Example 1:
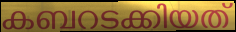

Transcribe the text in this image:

കബറടക്കിയത്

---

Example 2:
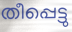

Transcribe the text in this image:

തീപ്പെട്ടു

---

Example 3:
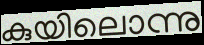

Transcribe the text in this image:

കുയിലൊന്നു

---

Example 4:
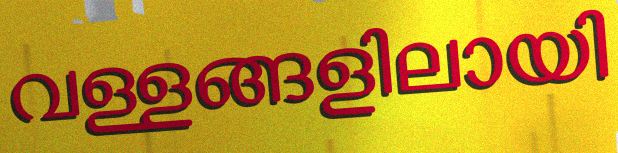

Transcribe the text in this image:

വള്ളങ്ങളിലായി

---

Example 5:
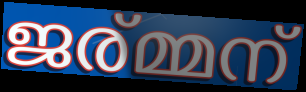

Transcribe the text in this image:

ജര്മ്മന്